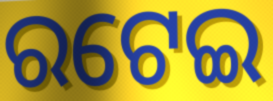
ରଟେଇ